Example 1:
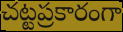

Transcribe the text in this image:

చట్టప్రకారంగా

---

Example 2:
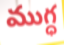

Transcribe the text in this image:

ముగ్ధ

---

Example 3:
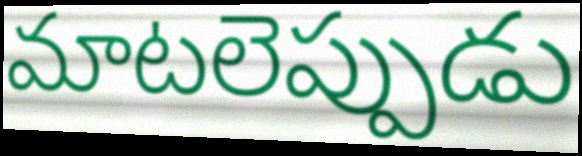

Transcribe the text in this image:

మాటలెప్పుడు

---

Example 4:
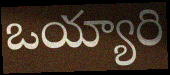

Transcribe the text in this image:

ఒయ్యారి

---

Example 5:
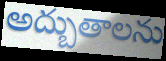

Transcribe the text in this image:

అద్బుతాలను